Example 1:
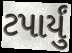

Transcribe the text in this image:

ટપાર્યું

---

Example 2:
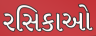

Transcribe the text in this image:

રસિકાઓ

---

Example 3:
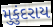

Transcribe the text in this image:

મુકુંદરાય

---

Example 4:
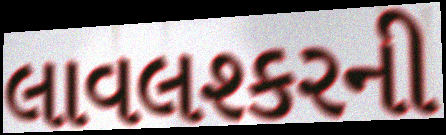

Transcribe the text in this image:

લાવલશ્કરની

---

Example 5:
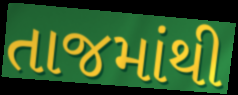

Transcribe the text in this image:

તાજમાંથી